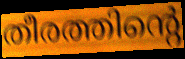
തീരത്തിന്റെ